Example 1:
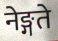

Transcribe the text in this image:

नेङ्गते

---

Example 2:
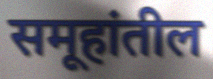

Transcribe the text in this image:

समूहांतील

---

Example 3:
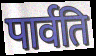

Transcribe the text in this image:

पार्वति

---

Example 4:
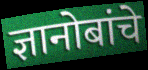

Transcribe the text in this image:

ज्ञानोबांचे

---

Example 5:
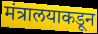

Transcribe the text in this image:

मंत्रालयाकडून